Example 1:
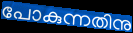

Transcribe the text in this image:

പോകുന്നതിനു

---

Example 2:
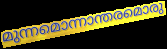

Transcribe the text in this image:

മുന്നമൊന്നാന്തരമൊരു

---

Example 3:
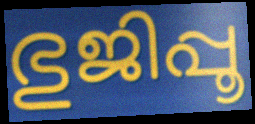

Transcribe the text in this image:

ഭുജിപ്പൂ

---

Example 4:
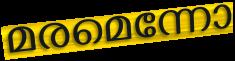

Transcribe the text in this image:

മരമെന്നോ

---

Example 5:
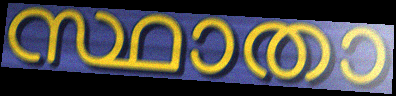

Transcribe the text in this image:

സ്ഥാതാ